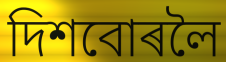
দিশবোৰলৈ